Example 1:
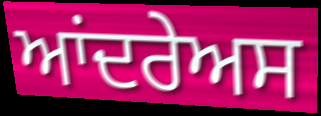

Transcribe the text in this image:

ਆਂਦਰੇਅਸ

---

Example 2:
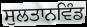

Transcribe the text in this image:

ਸੁਲਤਾਨਵਿੰਡ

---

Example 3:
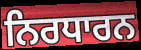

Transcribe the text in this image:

ਨਿਰਧਾਰਨ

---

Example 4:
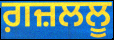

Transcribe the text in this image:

ਗ਼ਜ਼ਲਲੂ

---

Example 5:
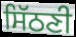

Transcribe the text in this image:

ਸਿੱਠਣੀ